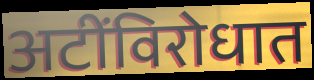
अटींविरोधात